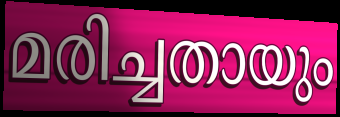
മരിച്ചതായും